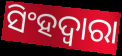
ସିଂହଦ୍ୱାରା